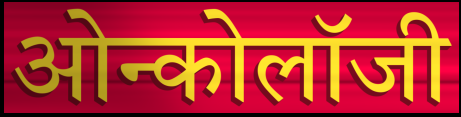
ओन्कोलॉजी